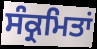
ਸੰਕ੍ਰਮਿਤਾਂ